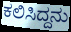
ಕಲಿಸಿದ್ದನು